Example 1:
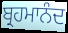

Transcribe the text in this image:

ਬ੍ਰਹਮਾਨੰਦ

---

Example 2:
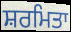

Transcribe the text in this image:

ਸ਼ਰਮਿਤਾ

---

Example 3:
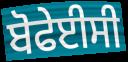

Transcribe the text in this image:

ਬੋਫੇਈਸੀ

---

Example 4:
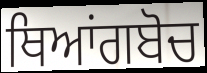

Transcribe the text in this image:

ਥਿਆਂਗਬੋਚ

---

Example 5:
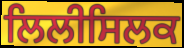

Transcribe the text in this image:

ਲਿਲੀਸਿਲਕ